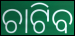
ଚାଟିବ